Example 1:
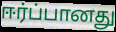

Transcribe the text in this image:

ஈர்ப்பானது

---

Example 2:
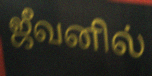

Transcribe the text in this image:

ஜீவனில்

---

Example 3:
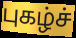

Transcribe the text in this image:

புகழ்ச்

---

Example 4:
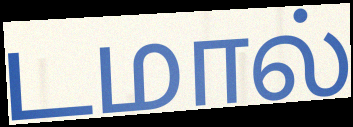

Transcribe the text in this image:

டமால்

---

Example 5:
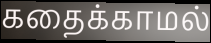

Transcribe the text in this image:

கதைக்காமல்